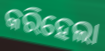
କରିହେଲା